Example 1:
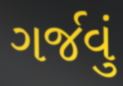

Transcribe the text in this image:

ગર્જવું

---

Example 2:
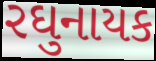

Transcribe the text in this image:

રઘુનાયક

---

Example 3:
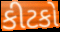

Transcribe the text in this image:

કીટકો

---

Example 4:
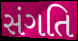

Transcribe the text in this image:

સંગતિ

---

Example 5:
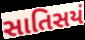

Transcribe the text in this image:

સાતિસયં